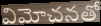
విమోచనతో